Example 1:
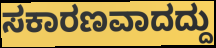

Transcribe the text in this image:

ಸಕಾರಣವಾದದ್ದು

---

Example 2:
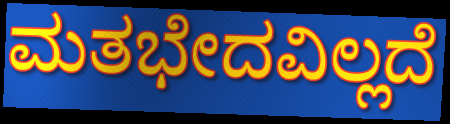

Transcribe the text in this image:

ಮತಭೇದವಿಲ್ಲದೆ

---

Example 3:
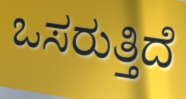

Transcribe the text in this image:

ಒಸರುತ್ತಿದೆ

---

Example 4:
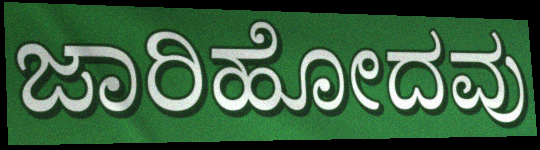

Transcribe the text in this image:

ಜಾರಿಹೋದವು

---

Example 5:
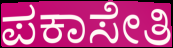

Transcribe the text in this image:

ಪಕಾಸೇತಿ